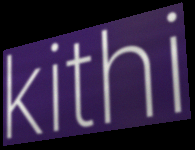
kithi